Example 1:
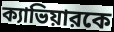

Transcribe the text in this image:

ক্যাভিয়ারকে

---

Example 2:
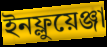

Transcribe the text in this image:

ইনফ্লুয়েঞ্জা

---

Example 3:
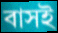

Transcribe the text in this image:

বাসই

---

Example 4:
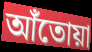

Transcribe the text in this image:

আঁতোয়া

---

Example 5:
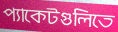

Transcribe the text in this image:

প্যাকেটগুলিতে